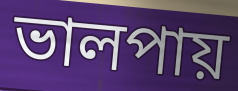
ভালপায়